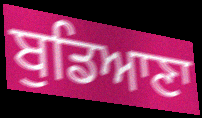
ਬੁਡਿਆਣਾ